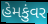
હેમકુંવર